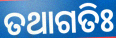
ତଥାଗତିଃ